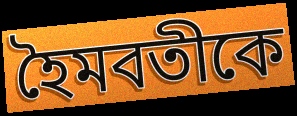
হৈমবতীকে